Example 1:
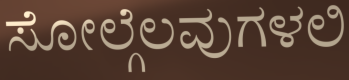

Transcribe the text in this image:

ಸೋಲ್ಗೆಲವುಗಳಲಿ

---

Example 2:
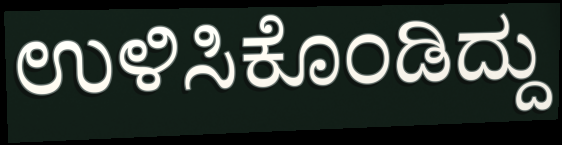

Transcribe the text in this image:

ಉಳಿಸಿಕೊಂಡಿದ್ದು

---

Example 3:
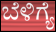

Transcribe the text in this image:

ಬೆಳಿಗ್ಯೆ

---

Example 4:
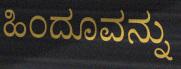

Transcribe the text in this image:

ಹಿಂದೂವನ್ನು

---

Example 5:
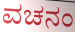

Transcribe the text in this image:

ವಚನಂ